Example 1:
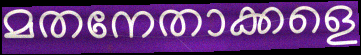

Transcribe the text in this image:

മതനേതാക്കളെ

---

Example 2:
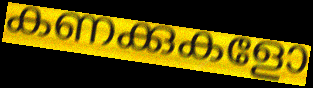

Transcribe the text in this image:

കണക്കുകളോ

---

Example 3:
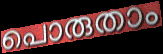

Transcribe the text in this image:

പൊരുതാം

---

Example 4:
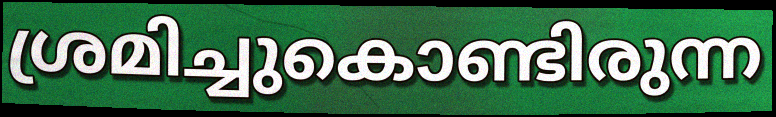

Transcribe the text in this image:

ശ്രമിച്ചുകൊണ്ടിരുന്ന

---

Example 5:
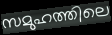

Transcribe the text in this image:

സമുഹത്തിലെ